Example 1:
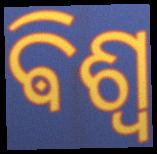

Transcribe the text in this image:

ଵିଶ୍ୱ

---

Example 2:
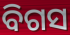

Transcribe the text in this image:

ବିଗସ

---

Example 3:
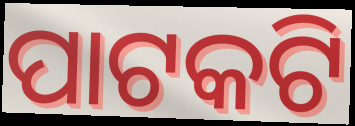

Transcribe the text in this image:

ପାଟକଟି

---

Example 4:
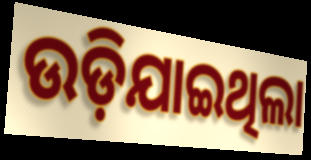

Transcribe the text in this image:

ଉଡ଼ିଯାଇଥିଲା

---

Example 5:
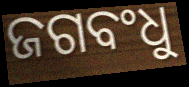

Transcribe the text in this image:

ଜଗବଂଧୁ